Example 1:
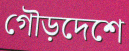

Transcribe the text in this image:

গৌড়দেশে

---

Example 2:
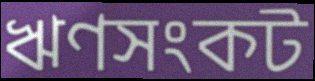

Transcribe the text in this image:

ঋণসংকট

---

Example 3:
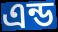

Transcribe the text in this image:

এন্ড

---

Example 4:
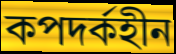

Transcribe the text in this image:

কপদর্কহীন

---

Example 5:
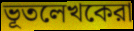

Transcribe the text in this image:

ভূতলেখকেরা